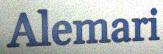
Alemari